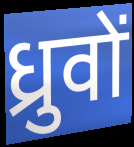
ध्रुवों